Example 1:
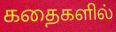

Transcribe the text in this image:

கதைகளில்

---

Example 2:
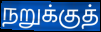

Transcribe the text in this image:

நறுக்குத்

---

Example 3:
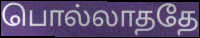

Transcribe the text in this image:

பொல்லாததே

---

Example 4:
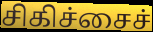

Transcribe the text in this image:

சிகிச்சைச்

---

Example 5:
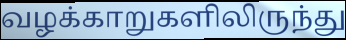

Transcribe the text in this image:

வழக்காறுகளிலிருந்து